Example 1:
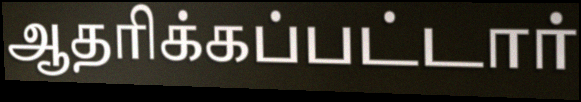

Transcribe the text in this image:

ஆதரிக்கப்பட்டார்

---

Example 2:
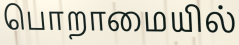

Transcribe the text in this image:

பொறாமையில்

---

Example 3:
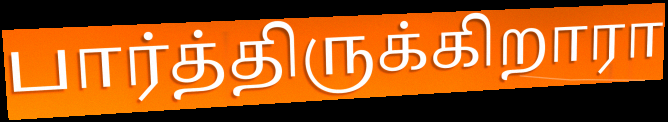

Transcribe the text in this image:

பார்த்திருக்கிறாரா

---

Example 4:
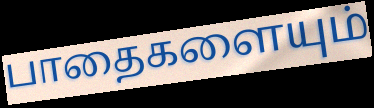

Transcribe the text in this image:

பாதைகளையும்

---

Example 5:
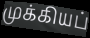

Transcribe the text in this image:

முக்கியப்